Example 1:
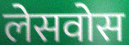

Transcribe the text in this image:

लेसवोस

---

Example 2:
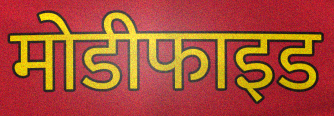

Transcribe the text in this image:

मोडीफाइड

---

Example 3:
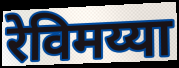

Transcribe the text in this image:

रेविमय्या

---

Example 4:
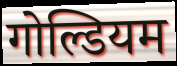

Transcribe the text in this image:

गोल्डियम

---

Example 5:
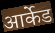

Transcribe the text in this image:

आर्केड